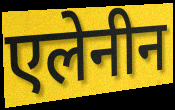
एलेनीन